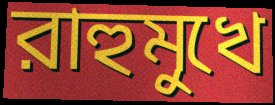
রাহুমুখে